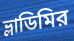
ভ্লাডিমির